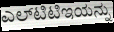
ಎಲ್‌ಟಿಟಿಇಯನ್ನು